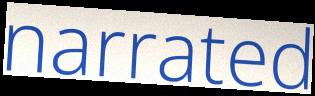
narrated